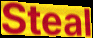
Steal